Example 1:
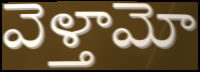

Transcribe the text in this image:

వెళ్తామో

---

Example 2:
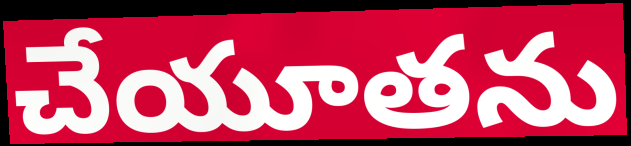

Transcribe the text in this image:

చేయూతను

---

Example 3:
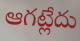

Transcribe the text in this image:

ఆగట్లేదు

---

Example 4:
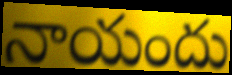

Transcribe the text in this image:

నాయందు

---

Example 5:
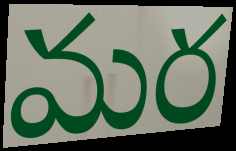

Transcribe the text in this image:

మర